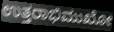
ಉತ್ತರಾಭಿಮುಖೋ